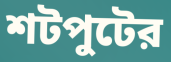
শটপুটের